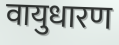
वायुधारण